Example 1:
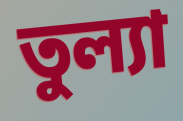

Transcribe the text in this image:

তুল্যা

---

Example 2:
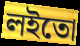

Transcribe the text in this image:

লইতো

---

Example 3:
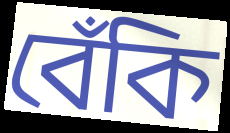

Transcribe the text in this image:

বেঁকি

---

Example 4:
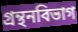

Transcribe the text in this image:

গ্রন্থনবিভাগ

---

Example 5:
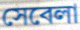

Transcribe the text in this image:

সেবেলা